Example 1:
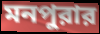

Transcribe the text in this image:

মনপুরার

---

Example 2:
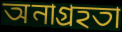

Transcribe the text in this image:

অনাগ্রহতা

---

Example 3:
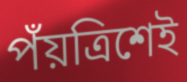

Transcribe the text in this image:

পঁয়ত্রিশেই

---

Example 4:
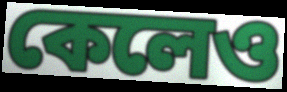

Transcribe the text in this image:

কেলেও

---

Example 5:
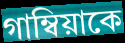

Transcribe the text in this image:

গাম্বিয়াকে